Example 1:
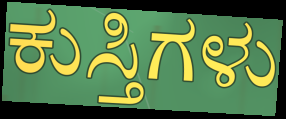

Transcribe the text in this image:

ಕುಸ್ತಿಗಳು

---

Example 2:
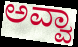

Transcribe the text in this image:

ಅವ್ವಾ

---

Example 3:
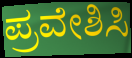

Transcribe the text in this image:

ಪ್ರವೇಶಿಸಿ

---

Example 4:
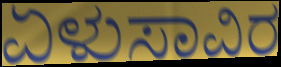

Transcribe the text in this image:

ಏಳುಸಾವಿರ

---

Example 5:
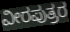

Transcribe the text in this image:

ವೀರಪುತ್ರರ